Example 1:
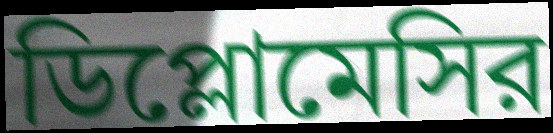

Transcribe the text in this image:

ডিপ্লোমেসির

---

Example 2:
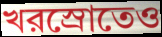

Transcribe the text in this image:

খরস্রোতেও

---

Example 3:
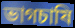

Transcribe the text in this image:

ভাগচাষি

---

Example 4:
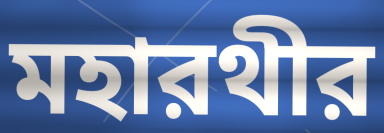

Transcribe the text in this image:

মহারথীর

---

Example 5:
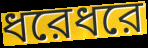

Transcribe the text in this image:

ধরেধরে